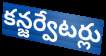
కన్జర్వేటర్లు